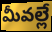
మీవల్లే